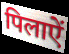
पिलाऐं